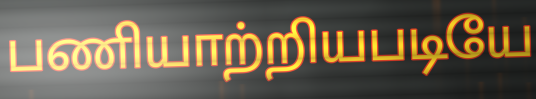
பணியாற்றியபடியே